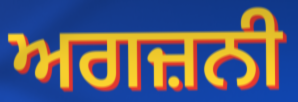
ਅਗਜ਼ਨੀ